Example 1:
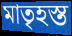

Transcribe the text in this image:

মাতৃহস্ত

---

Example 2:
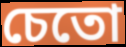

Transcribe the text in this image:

চেতো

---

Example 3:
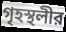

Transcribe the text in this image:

গৃহস্থলীর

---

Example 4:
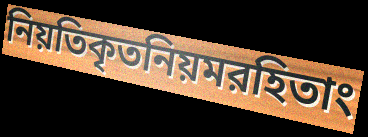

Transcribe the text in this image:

নিয়তিকৃতনিয়মরহিতাং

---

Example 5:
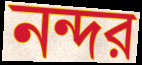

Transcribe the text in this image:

নন্দর